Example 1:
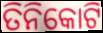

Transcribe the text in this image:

ତିନିକୋଟି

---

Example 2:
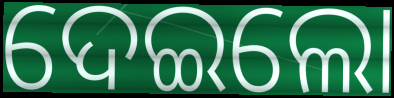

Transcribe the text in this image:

ଦେଇଲୋ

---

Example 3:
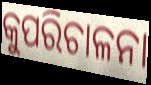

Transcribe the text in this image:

କୁପରିଚାଳନା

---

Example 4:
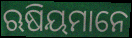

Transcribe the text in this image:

ଋଷିୟମାନେ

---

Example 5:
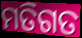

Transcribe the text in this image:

ମତିଗତ